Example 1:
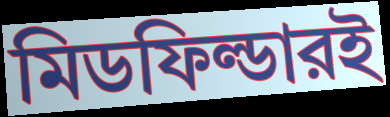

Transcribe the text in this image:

মিডফিল্ডারই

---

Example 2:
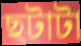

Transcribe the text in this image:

ছটাটা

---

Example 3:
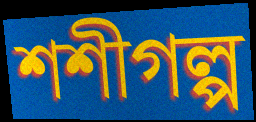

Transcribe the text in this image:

শশীগল্প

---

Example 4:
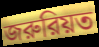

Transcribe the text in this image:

জরুরিয়ত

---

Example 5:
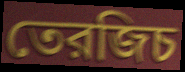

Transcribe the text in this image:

তেরজিচ